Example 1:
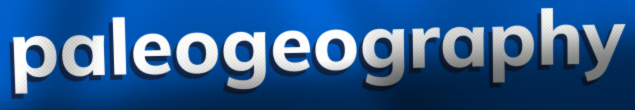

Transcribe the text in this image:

paleogeography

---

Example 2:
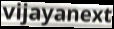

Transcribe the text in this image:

vijayanext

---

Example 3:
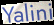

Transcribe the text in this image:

Yalini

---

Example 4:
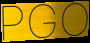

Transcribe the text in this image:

PGO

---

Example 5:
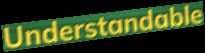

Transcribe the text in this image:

Understandable